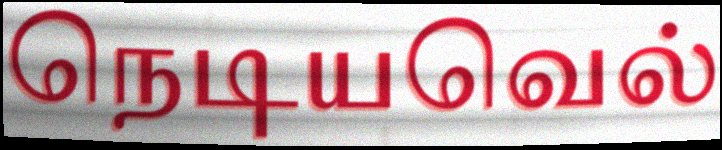
நெடியவெல்